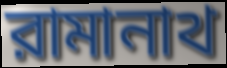
রামানাথ